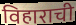
विहाराची